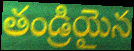
తండ్రియైన